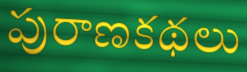
పురాణకథలు